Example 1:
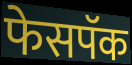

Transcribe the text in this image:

फेसपॅक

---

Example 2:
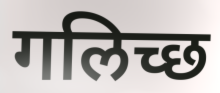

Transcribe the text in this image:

गलिच्छ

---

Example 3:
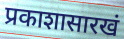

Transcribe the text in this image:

प्रकाशासारखं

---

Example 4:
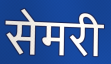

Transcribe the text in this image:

सेमरी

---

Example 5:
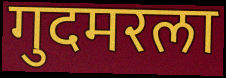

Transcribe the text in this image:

गुदमरला